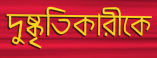
দুষ্কৃতিকারীকে